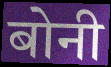
बोनी